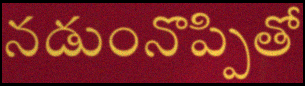
నడుంనొప్పితో